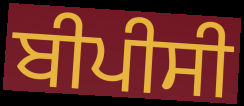
ਬੀਪੀਸੀ